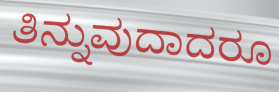
ತಿನ್ನುವುದಾದರೂ